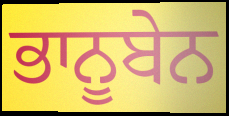
ਭਾਨੂਬੇਨ